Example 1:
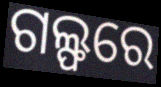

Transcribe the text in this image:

ଗଲ୍ଫରେ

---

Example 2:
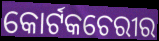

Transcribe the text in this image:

କୋର୍ଟକଚେରୀର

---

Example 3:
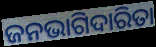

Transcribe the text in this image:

ଜନଭାଗିଦାରିତା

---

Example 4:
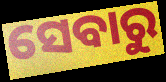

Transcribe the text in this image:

ସେବାରୁ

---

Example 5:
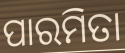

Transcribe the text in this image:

ପାରମିତା